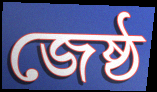
জেষ্ঠ